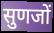
सुणजों